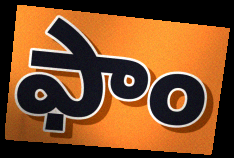
ఫాం